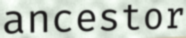
ancestor